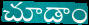
చూడాం